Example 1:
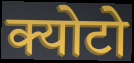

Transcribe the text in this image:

क्‍योटो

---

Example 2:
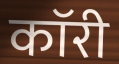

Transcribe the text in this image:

कॉरी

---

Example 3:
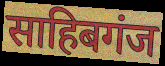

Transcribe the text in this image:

साहिबगंज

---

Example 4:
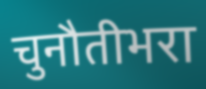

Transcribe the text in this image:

चुनौतीभरा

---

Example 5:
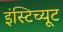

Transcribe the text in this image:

इंस्टिच्यूट